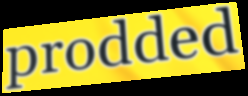
prodded